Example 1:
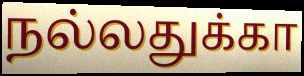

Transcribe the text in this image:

நல்லதுக்கா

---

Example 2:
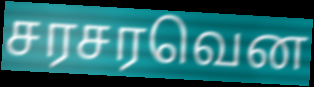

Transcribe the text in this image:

சரசரவென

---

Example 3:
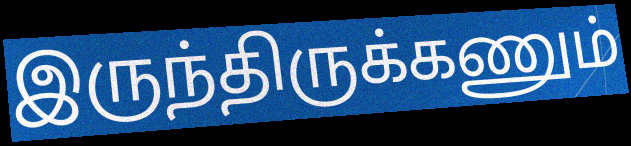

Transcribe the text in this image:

இருந்திருக்கணும்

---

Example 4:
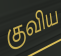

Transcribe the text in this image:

குவிய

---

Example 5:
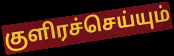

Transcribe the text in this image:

குளிரச்செய்யும்